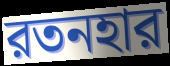
রতনহার